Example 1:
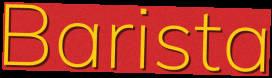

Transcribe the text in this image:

Barista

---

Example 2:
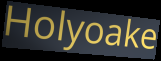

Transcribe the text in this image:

Holyoake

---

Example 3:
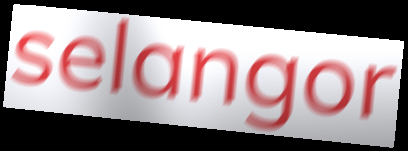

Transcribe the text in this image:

selangor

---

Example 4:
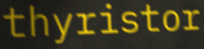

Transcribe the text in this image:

thyristor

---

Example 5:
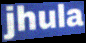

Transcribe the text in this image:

jhula